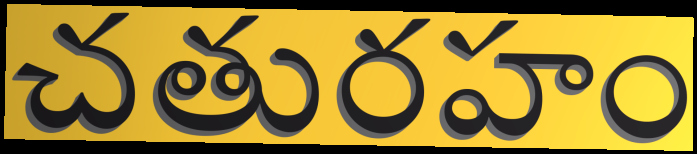
చతురహం